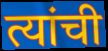
त्यांची